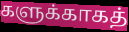
களுக்காகத்